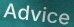
Advice